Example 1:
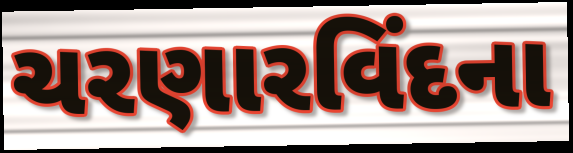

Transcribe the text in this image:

ચરણારવિંદના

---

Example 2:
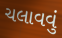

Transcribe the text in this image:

ચલાવવું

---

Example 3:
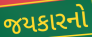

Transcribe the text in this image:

જયકારનો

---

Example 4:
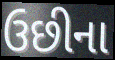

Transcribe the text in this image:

ઉછીના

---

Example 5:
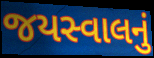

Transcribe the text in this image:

જયસ્વાલનું